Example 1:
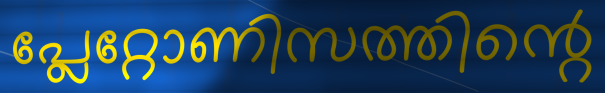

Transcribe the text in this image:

പ്ലേറ്റോണിസത്തിന്റെ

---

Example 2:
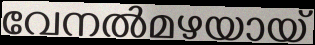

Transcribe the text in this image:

വേനൽമഴയായ്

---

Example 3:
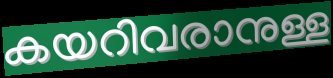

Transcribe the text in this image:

കയറിവരാനുള്ള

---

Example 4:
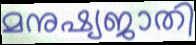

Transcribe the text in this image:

മനുഷ്യജാതി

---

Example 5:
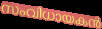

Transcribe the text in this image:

സംവിധായകൻ